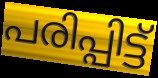
പരിപ്പിട്ട്